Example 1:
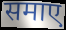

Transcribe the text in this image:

समाए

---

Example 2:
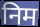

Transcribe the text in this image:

निम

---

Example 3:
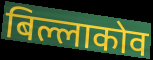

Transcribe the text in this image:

बिल्लाकोव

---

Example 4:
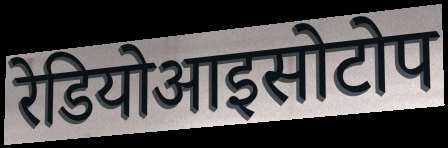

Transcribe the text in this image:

रेडियोआइसोटोप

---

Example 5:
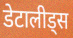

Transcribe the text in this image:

डेटालीड्स